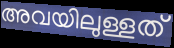
അവയിലുള്ളത്